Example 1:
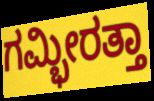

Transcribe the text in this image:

ಗಮ್ಭೀರತ್ತಾ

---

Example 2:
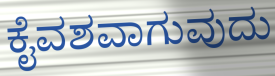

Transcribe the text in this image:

ಕೈವಶವಾಗುವುದು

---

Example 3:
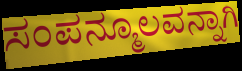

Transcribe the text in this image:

ಸಂಪನ್ಮೂಲವನ್ನಾಗಿ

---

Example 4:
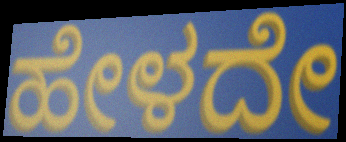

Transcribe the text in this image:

ಹೇಳದೇ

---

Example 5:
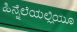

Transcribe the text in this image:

ಹಿನ್ನೆಲೆಯಲ್ಲಿಯೂ